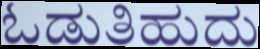
ಓಡುತಿಹುದು